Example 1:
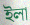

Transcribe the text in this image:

ইলা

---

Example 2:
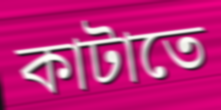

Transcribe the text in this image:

কাটাতে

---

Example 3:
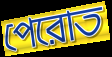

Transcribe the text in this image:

পেরোত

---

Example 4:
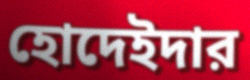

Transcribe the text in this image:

হোদেইদার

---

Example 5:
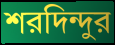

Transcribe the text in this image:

শরদিন্দুর